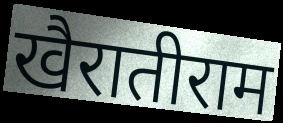
खैरातीराम